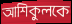
আশিকুলকে